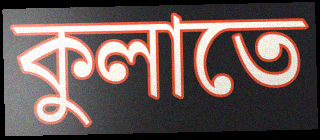
কুলাতে